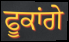
ਫੂਕਾਂਗੇ